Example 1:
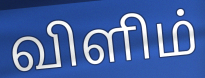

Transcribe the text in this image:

விளிம்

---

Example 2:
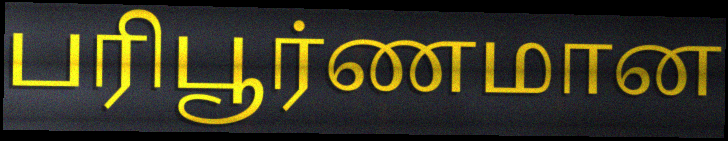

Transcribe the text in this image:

பரிபூர்ணமான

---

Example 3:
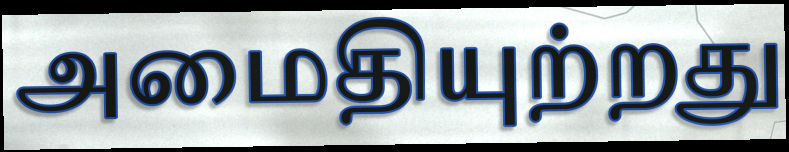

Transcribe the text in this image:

அமைதியுற்றது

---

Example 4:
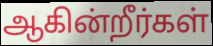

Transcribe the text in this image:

ஆகின்றீர்கள்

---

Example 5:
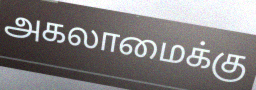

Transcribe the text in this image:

அகலாமைக்கு